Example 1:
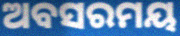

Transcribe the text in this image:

ଅବସରମୟ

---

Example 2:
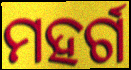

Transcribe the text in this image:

ମହର୍ଗ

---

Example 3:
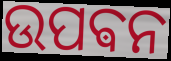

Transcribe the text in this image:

ଉପଵନ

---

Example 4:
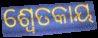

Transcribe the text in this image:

ଶ୍ବେତକାୟ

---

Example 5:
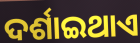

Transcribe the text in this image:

ଦର୍ଶାଇଥାଏ